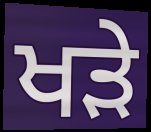
ਖਡ਼ੇ